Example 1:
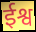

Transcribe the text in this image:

ईश्व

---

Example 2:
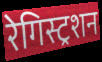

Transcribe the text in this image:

रेगिस्ट्रशन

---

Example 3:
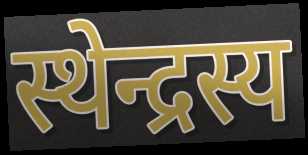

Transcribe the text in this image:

स्थेन्द्रस्य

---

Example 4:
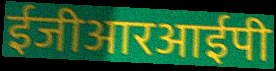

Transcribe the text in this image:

ईजीआरआईपी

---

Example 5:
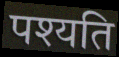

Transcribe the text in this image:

पश्यति